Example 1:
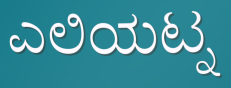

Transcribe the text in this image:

ಎಲಿಯಟ್ನ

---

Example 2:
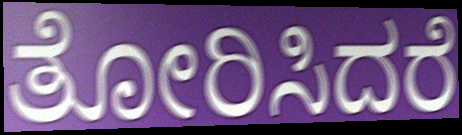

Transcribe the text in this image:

ತೋರಿಸಿದರೆ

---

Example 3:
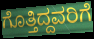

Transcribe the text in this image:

ಗೊತ್ತಿದ್ದವರಿಗೆ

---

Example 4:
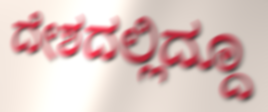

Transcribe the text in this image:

ದೇಶದಲ್ಲಿದ್ದೂ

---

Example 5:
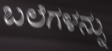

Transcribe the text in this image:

ಬಲೆಗಳನ್ನು